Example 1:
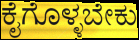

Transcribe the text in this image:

ಕೈಗೊಳ್ಳಬೇಕು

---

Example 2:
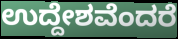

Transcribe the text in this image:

ಉದ್ದೇಶವೆಂದರೆ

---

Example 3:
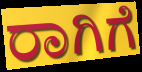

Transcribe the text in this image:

ರಾಗಿಗೆ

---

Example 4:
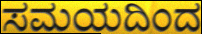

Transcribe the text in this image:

ಸಮಯದಿಂದ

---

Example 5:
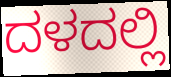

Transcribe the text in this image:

ದಳದಲ್ಲಿ